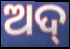
ଅଦ୍